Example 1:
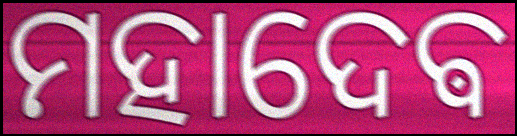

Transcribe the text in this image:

ମହାଦେଵ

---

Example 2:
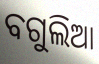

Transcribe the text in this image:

ବଗୁଲିଆ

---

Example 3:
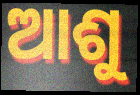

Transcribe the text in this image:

ଆଶୁ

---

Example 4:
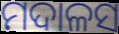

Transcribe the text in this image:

ମଦାଳସ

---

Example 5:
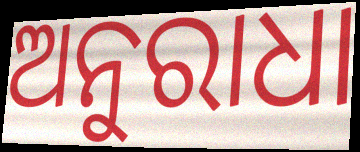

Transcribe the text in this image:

ଅନୁରାଧା